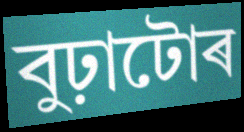
বুঢ়াটোৰ